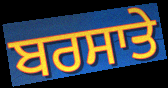
ਬਰਸਾਤੇ